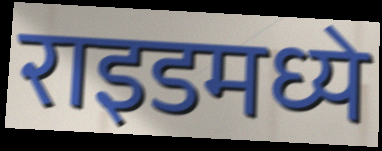
राइडमध्ये